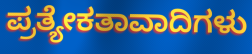
ಪ್ರತ್ಯೇಕತಾವಾದಿಗಳು